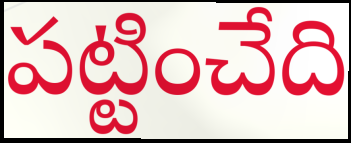
పట్టించేది